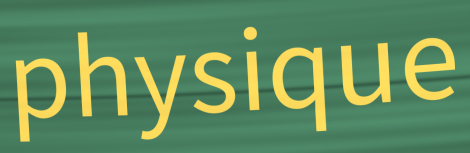
physique